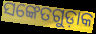
ସଙ୍କେତଗୁଡ଼ାକ